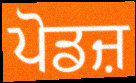
ਪੋਡਜ਼